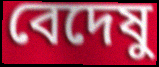
বেদেষু